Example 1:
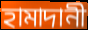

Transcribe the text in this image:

হামাদানী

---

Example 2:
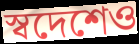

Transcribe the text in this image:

স্বদেশেও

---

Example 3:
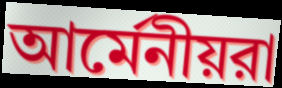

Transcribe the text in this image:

আর্মেনীয়রা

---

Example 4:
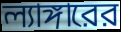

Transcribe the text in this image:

ল্যাঙ্গারের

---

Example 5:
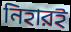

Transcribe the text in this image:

নিহারই